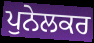
ਪੁਨੇਲਕਰ